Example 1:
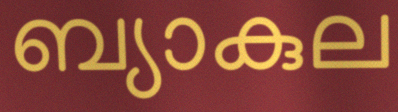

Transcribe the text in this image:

ബ്യാകുല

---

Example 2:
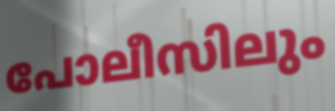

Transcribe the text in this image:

പോലീസിലും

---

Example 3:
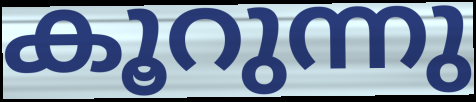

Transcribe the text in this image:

കൂറുന്നു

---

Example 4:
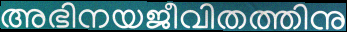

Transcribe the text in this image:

അഭിനയജീവിതത്തിനു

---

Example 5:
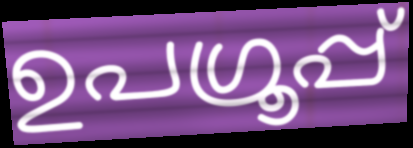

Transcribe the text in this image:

ഉപഗ്രൂപ്പ്